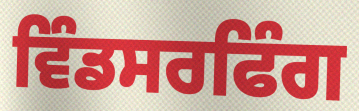
ਵਿੰਡਸਰਫਿੰਗ